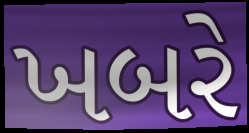
ખબરે